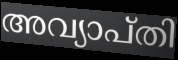
അവ്യാപ്തി